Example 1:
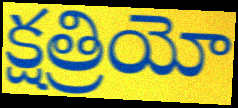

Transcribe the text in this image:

క్షత్రియో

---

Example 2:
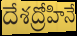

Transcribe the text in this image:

దేశద్రోహినే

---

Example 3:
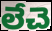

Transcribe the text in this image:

లేచె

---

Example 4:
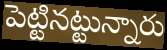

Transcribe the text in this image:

పెట్టినట్టున్నారు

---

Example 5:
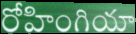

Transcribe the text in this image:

రోహింగియా